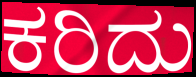
ಕರಿದು